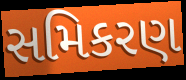
સમિકરણ